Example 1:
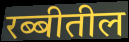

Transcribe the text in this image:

रब्बीतील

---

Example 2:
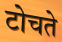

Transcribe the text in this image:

टोचते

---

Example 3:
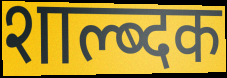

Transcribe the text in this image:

शाल्ब्दक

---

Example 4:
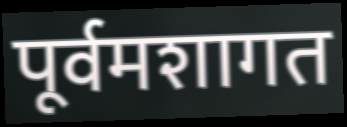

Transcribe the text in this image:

पूर्वमशागत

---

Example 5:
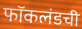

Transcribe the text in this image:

फॉकलंडची